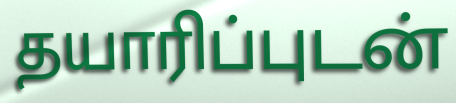
தயாரிப்புடன்